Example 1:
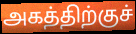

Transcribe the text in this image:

அகத்திற்குச்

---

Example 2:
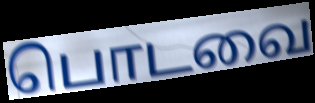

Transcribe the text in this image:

பொடவை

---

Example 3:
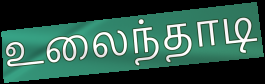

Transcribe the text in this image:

உலைந்தாடி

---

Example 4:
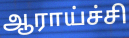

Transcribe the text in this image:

ஆராய்ச்சி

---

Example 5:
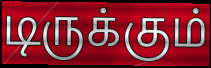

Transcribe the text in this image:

டிருக்கும்